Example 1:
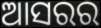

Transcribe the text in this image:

ଆସରର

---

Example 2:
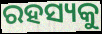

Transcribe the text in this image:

ରହସ୍ୟକୁ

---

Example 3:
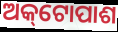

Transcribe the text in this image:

ଅକ୍‌ଟୋପାଶ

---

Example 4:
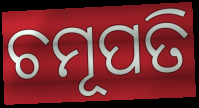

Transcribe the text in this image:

ଚମୂପତି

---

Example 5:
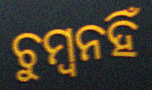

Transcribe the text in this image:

ଚୁମ୍ବନହିଁ